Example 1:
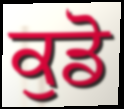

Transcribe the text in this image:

ਕੁਡੋ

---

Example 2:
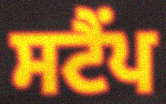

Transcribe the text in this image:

ਸਟੈਂਪ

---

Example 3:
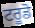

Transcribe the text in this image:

ਟਰੂਡੋ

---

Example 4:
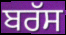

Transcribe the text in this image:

ਬਰੱਸ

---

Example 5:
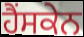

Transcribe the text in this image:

ਹੈਂਸਕੇਨ